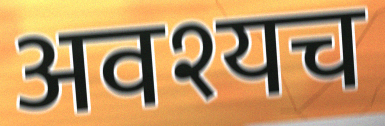
अवश्यच